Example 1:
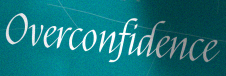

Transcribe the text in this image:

Overconfidence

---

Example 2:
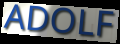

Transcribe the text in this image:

ADOLF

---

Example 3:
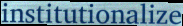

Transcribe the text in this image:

institutionalize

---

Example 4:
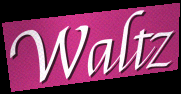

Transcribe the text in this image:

Waltz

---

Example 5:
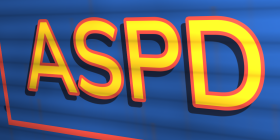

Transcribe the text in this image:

ASPD